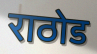
राठोड